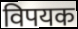
विपयक